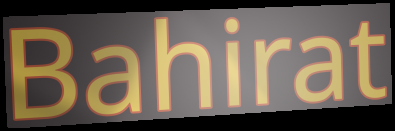
Bahirat